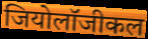
जियोलॉजीकल